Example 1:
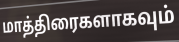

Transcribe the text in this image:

மாத்திரைகளாகவும்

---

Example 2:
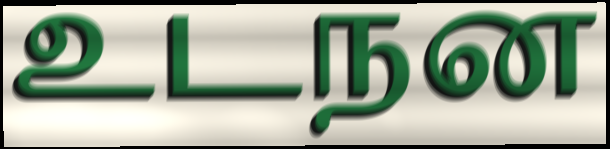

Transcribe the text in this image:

உடநன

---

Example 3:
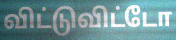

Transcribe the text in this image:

விட்டுவிட்டோ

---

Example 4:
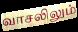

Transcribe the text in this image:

வாசலிலும்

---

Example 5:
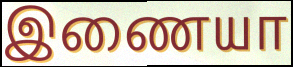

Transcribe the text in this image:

இணையா